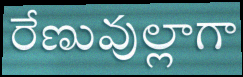
రేణువుల్లాగా